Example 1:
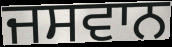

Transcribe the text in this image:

ਜਸਵਾਨ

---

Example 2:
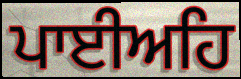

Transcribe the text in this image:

ਪਾਈਅਹਿ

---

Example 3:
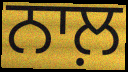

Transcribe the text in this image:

ਨਾਲ਼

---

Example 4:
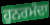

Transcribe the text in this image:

ਹੁਨਰਮੰਦਾ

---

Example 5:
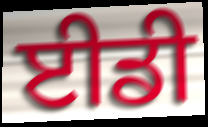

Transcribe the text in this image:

ਈਡੀ